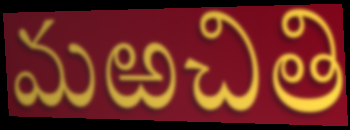
మఱచితి